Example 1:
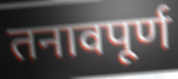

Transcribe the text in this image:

तनावपूर्ण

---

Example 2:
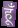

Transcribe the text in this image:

हूंँ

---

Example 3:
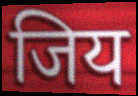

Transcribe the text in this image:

जिय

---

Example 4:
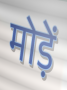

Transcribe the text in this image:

मोड़ें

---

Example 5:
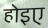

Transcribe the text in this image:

होइए